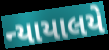
ન્યાયાલયે